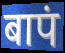
बापं